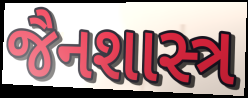
જૈનશાસ્ત્ર